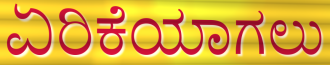
ಏರಿಕೆಯಾಗಲು